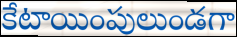
కేటాయింపులుండగా